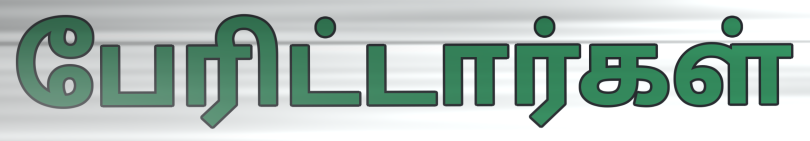
பேரிட்டார்கள்